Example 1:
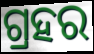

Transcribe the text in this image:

ଗ୍ରହର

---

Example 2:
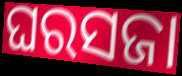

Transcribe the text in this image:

ଘରସଜା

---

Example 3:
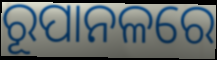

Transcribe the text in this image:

ରୂପାନଳରେ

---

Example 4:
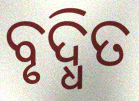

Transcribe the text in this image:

ବୃଦ୍ଧିତ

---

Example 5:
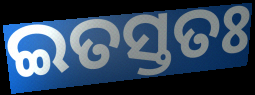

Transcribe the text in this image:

ଇତସ୍ତତଃ